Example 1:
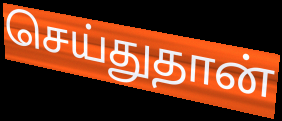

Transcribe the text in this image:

செய்துதான்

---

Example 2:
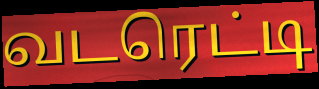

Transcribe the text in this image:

வடரெட்டி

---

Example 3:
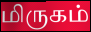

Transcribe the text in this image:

மிருகம்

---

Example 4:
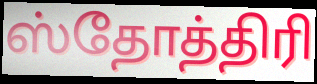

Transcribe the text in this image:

ஸ்தோத்திரி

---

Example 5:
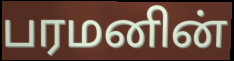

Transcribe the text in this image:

பரமனின்